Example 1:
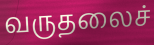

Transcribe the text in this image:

வருதலைச்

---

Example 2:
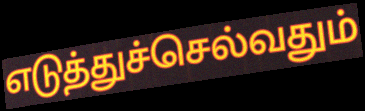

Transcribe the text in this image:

எடுத்துச்செல்வதும்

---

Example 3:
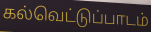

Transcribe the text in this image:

கல்வெட்டுப்பாடம்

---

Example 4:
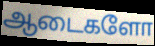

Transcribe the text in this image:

ஆடைகளோ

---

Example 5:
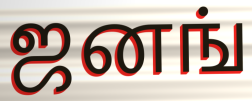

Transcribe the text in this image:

ஜனங்